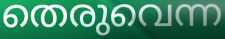
തെരുവെന്ന